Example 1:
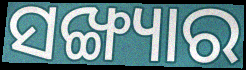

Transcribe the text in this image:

ସଙ୍ଖ୍ୟାର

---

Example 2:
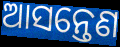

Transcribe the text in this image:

ଆସନ୍ତେଣ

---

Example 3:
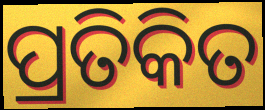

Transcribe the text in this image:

ପ୍ରତିକିତ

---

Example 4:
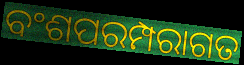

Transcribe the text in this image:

ବଂଶପରମ୍ପରାଗତ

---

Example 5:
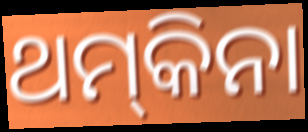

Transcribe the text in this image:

ଥମ୍‍କିନା